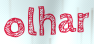
olhar